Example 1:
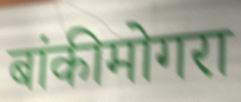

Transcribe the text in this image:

बांकीमोगरा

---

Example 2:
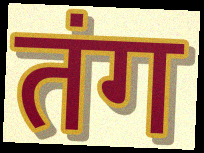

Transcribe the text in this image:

तंग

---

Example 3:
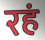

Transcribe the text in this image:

रहं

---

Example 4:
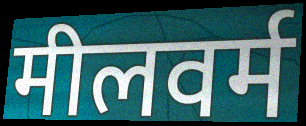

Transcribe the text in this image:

मीलवर्म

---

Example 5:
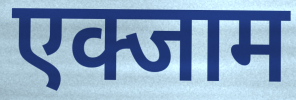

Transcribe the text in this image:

एक्जाम